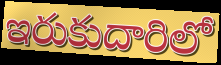
ఇరుకుదారిలో